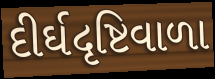
દીર્ઘદૃષ્ટિવાળા